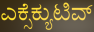
ಎಕ್ಸೆಕ್ಯುಟಿವ್